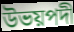
উভয়পদী